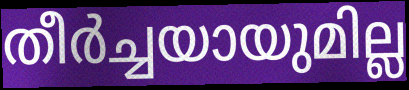
തീർച്ചയായുമില്ല